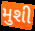
મુશી